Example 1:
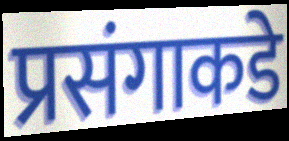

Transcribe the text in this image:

प्रसंगाकडे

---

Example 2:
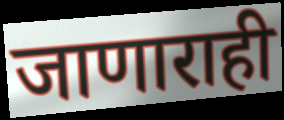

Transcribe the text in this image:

जाणाराही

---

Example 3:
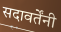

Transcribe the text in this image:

सदावर्तेंनी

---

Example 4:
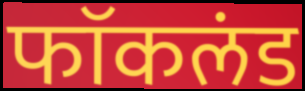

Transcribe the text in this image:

फॉकलंड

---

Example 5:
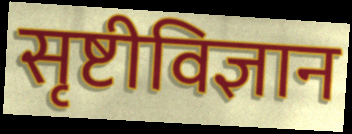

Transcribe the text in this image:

सृष्टीविज्ञान